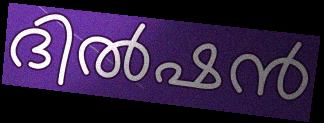
ദിൽഷൻ